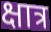
क्षात्र